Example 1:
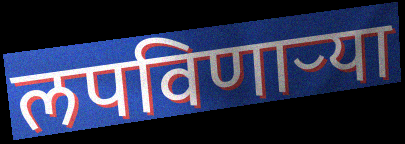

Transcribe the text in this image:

लपविणाऱ्या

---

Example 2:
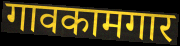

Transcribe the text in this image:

गावकामगार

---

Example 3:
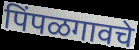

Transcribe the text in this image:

पिंपळगावचे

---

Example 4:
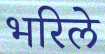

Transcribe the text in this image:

भरिले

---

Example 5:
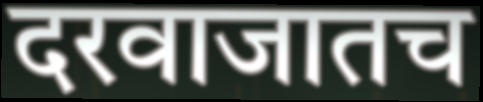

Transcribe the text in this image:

दरवाजातच